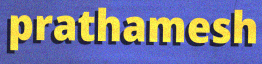
prathamesh